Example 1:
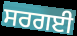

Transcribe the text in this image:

ਸਰਗਈ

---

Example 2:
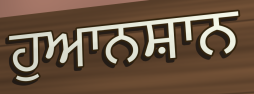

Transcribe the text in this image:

ਹੁਆਨਸ਼ਾਨ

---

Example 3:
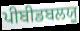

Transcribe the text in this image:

ਪੀਬੀਡਬਲਯੂ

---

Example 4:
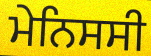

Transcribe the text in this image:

ਮੇਨਿਸਸੀ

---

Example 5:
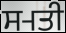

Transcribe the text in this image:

ਸ੍ਮਤੀ